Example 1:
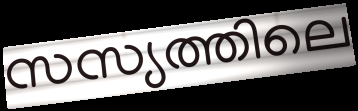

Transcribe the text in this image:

സസ്യത്തിലെ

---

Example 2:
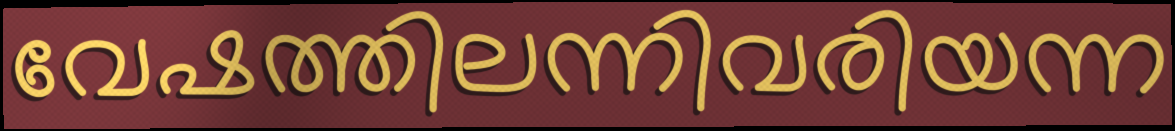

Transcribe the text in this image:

വേഷത്തിലന്നിവരിയന്ന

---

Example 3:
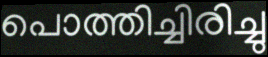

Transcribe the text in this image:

പൊത്തിച്ചിരിച്ചു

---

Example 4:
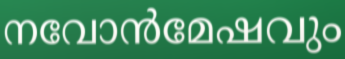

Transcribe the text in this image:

നവോൻമേഷവും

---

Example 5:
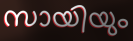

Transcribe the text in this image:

സായിയും